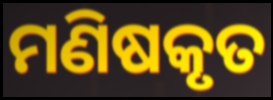
ମଣିଷକୃତ